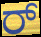
ರ್